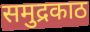
समुद्रकाठ